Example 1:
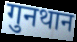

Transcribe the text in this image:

गुनथान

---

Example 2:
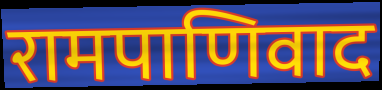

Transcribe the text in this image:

रामपाणिवाद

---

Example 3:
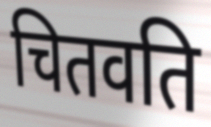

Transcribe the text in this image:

चितवति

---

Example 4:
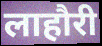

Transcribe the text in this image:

लाहौरी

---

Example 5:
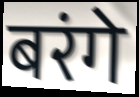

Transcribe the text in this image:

बरंगे